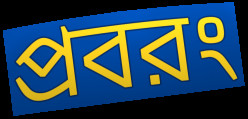
প্রবরং